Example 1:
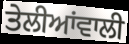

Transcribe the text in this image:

ਤੇਲੀਆਂਵਾਲੀ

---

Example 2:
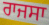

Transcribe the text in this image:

ਰਾਜਸਾ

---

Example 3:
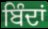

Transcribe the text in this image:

ਬਿੰਦਾਂ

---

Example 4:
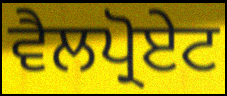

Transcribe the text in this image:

ਵੈਲਪ੍ਰੋਏਟ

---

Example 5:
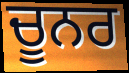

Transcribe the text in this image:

ਚੂਨਰ